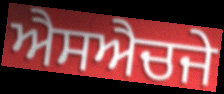
ਐਸਐਚਜੇ